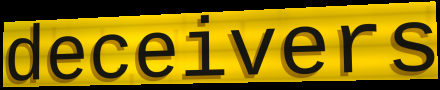
deceivers